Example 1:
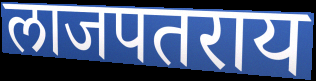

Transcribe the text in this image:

लाजपतराय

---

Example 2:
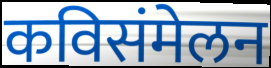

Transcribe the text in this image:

कविसंमेलन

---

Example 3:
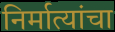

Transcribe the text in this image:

निर्मात्यांचा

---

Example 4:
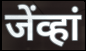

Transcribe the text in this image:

जेंव्हां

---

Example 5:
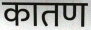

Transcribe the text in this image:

कातण